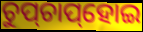
ଚୁପ୍‌ଚାପ୍‌ହୋଇ